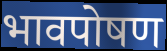
भावपोषण